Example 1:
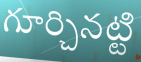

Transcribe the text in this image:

గూర్చినట్టి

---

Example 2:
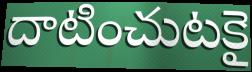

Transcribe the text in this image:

దాటించుటకై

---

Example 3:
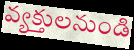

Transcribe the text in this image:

వ్యక్తులనుండి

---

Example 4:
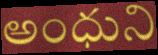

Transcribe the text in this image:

అంధుని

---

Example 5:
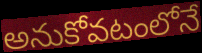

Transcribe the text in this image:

అనుకోవటంలోనే